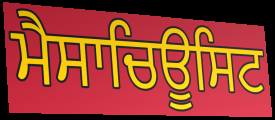
ਮੈਸਾਚਿਊਸਿਟ